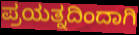
ಪ್ರಯತ್ನದಿಂದಾಗಿ